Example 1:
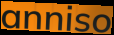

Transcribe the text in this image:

anniso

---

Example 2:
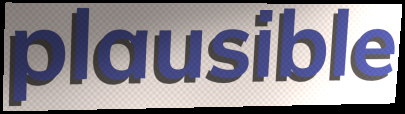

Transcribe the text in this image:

plausible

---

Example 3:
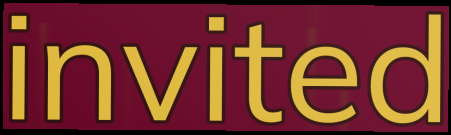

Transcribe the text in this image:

invited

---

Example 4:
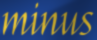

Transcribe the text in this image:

minus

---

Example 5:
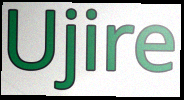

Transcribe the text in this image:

Ujire